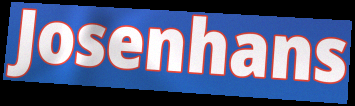
Josenhans